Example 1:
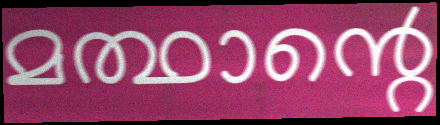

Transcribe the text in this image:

മത്ഥാന്റെ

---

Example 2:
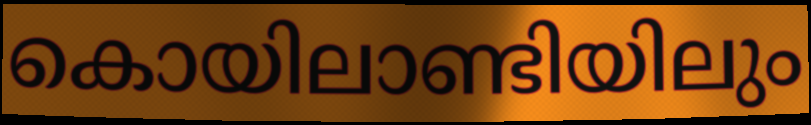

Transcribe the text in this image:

കൊയിലാണ്ടിയിലും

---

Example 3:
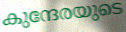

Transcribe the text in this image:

കുന്ദേരയുടെ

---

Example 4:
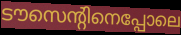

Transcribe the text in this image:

ടൗസെന്റിനെപ്പോലെ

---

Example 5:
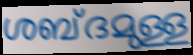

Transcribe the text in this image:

ശബ്ദമുള്ള